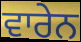
ਵਾਰੇਨ